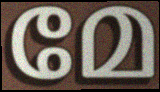
മേ